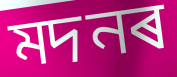
মদনৰ